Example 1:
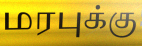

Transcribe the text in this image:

மரபுக்கு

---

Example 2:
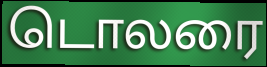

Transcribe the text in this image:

டொலரை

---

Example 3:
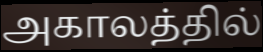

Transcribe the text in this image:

அகாலத்தில்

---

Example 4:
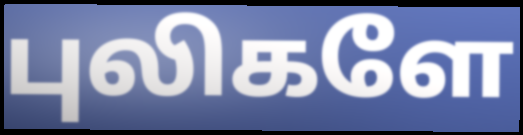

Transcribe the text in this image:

புலிகளே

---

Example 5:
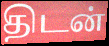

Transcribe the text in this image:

திடன்